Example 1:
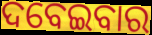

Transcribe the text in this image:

ଦବେଇବାର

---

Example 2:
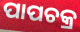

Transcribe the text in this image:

ପାପଚକ୍ର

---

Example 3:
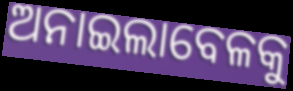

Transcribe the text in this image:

ଅନାଇଲାବେଳକୁ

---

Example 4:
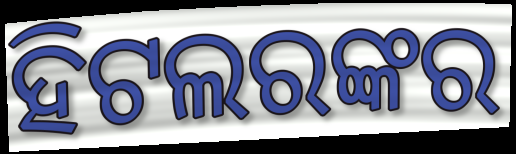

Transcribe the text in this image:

ହିଟଲରଙ୍କର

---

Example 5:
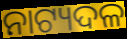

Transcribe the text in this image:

ନାଟ୍ୟଦଳ